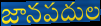
జానపదుల